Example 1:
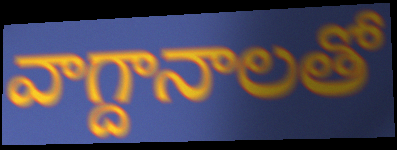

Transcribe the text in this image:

వాగ్దానాలతో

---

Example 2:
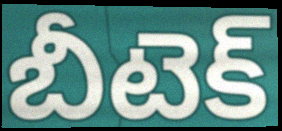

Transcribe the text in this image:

బీటెక్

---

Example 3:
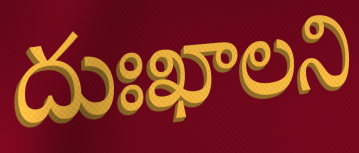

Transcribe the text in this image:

దుఃఖాలని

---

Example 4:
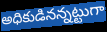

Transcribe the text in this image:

అధికుడినన్నట్టుగా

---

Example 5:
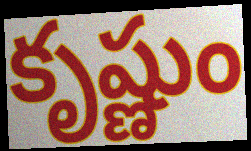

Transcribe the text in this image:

కృష్ణుం